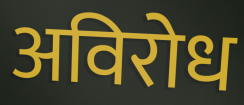
अविरोध